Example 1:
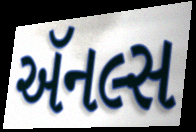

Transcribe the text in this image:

ઍનલ્સ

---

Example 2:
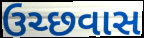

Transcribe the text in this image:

ઉચ્છવાસ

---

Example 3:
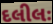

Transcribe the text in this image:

દલીલઃ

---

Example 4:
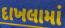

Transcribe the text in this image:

દાખલામાં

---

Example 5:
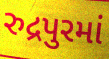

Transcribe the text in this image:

રુદ્રપુરમાં